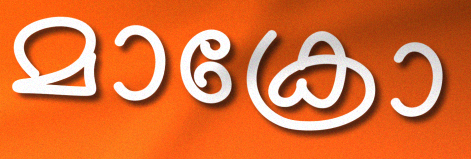
മാക്രോ